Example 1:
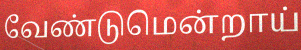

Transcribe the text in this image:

வேண்டுமென்றாய்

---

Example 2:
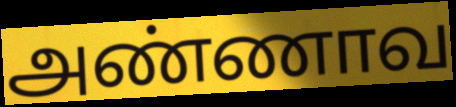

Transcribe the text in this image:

அண்ணாவ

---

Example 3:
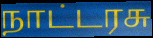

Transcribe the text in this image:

நாட்டரசு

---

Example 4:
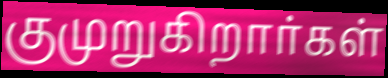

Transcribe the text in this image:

குமுறுகிறார்கள்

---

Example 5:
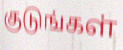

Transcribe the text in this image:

குடுங்கள்